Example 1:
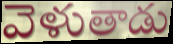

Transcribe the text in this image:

వెళుతాడు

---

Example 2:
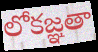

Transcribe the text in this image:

లోకజ్ఞతా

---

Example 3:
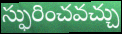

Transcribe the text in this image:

స్ఫురించవచ్చు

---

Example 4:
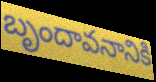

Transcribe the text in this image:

బృందావనానికి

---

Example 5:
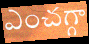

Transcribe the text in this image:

ఎంచగ్గా